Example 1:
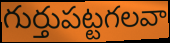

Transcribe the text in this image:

గుర్తుపట్టగలవా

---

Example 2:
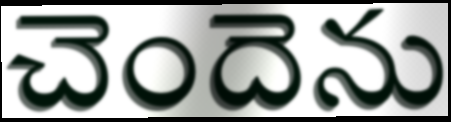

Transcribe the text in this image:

చెందెను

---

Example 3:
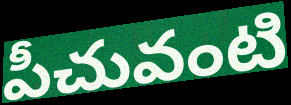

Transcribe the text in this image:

పీచువంటి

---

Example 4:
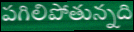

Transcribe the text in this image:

పగిలిపోతున్నది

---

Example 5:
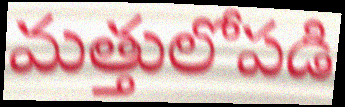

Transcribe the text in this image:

మత్తులోపడి